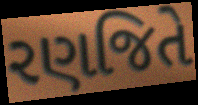
રણજિતે